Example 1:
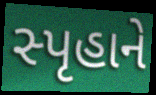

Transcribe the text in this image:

સ્પૃહાને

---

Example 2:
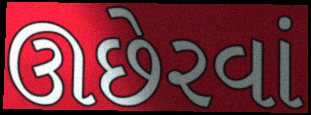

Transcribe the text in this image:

ઊછેરવાં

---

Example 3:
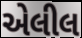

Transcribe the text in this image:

એલીલ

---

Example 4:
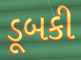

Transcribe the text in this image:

ડૂબકી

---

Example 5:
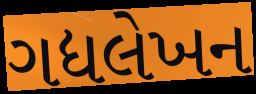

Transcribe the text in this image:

ગદ્યલેખન